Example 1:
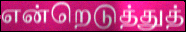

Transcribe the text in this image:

என்றெடுத்துத்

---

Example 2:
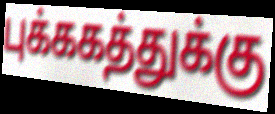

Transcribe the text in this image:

புக்ககத்துக்கு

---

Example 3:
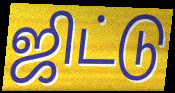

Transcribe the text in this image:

ஜிட்டு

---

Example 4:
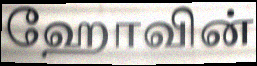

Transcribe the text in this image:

ஹோவின்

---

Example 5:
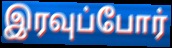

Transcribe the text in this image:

இரவுப்போர்